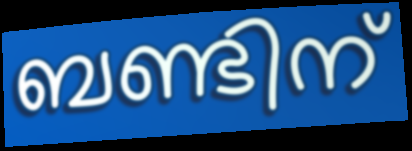
ബണ്ടിന്